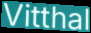
Vitthal